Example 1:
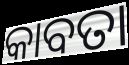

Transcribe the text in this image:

କାବତା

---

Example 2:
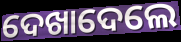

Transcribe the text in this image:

ଦେଖାଦେଲେ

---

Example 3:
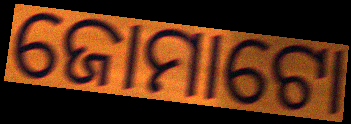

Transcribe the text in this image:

ଜୋମାଟୋ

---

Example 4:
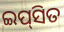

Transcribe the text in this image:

ଇପ୍‌ସିତ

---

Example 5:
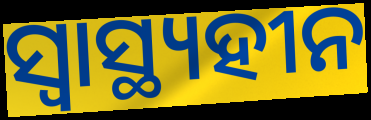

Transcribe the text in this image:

ସ୍ୱାସ୍ଥ୍ୟହୀନ